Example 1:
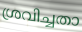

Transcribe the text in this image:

ശ്രവിച്ചതാ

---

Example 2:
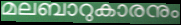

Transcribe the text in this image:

മലബാറുകാരനും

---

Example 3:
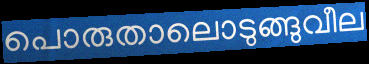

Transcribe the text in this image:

പൊരുതാലൊടുങ്ങുവീല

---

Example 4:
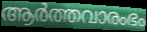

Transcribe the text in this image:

ആർത്തവാരംഭം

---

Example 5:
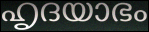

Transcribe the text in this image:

ഹൃദയാഭം